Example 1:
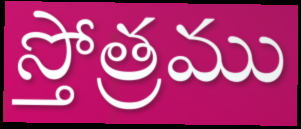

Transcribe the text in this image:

స్తోత్రము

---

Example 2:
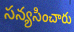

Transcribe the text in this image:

సన్యసించారు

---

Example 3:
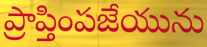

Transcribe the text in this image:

ప్రాప్తింపజేయును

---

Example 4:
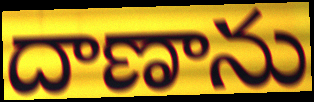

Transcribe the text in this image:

దాణాను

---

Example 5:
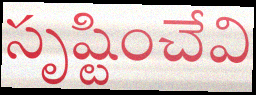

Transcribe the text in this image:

సృష్టించేవి